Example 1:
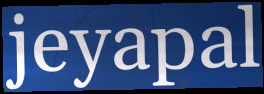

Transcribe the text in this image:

jeyapal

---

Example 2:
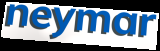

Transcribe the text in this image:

neymar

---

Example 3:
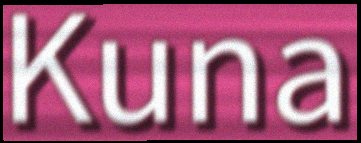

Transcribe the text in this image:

Kuna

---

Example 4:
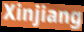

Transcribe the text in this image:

Xinjiang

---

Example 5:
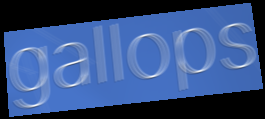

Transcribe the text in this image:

gallops